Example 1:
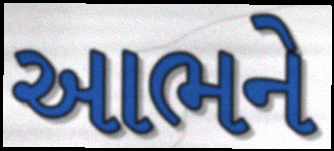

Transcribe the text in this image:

આભને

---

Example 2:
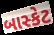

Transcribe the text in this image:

બાસ્કેટ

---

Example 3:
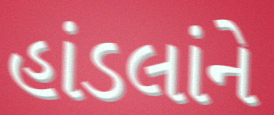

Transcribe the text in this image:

હાંડલાંને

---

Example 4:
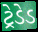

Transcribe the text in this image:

ટ્રેડેડ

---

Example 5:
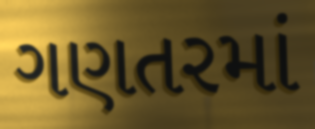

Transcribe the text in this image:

ગણતરમાં